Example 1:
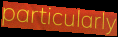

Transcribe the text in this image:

particularly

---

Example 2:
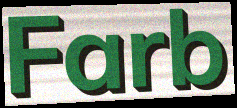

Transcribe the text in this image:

Farb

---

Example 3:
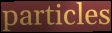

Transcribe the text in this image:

particles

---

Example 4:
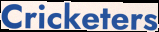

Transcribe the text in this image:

Cricketers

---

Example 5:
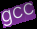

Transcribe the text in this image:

gcc